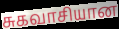
சுகவாசியான